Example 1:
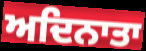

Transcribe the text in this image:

ਅਦਿਨਾਤਾ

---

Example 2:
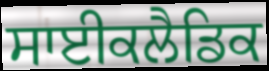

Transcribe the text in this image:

ਸਾਈਕਲੈਡਿਕ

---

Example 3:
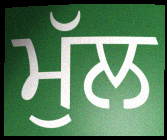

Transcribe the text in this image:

ਮੁੱਲ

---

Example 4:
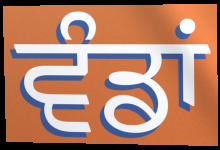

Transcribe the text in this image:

ਵੰਡਾਂ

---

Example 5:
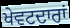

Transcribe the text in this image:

ਖੇਵਟਦਾਰਾਂ